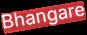
Bhangare